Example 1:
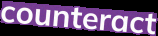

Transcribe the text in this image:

counteract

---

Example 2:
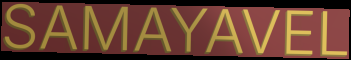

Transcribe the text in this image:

SAMAYAVEL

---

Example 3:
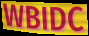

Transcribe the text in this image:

WBIDC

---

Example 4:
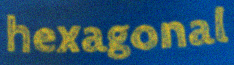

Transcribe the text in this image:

hexagonal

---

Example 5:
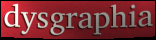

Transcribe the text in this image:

dysgraphia